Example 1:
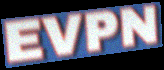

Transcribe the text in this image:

EVPN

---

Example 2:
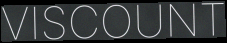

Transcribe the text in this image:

VISCOUNT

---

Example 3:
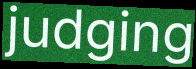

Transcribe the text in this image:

judging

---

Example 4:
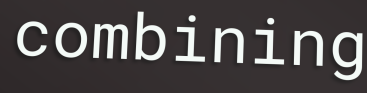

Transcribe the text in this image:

combining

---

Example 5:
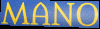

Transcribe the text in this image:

MANO